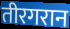
तीरगरान